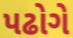
પઢોગે